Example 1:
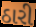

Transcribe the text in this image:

ઠારી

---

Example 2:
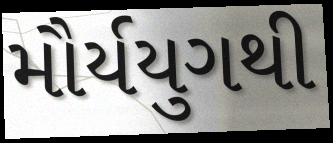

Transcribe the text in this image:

મૌર્યયુગથી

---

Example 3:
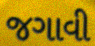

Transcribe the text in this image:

જગાવી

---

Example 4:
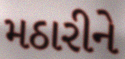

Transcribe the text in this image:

મઠારીને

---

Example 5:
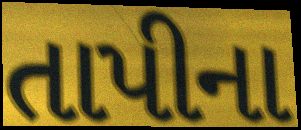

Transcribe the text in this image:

તાપીના